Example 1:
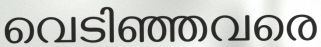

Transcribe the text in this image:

വെടിഞ്ഞവരെ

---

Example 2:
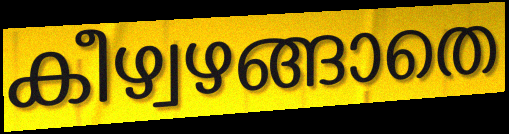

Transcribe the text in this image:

കീഴ്വഴങ്ങാതെ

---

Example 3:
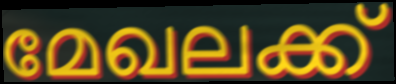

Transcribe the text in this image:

മേഖലക്ക്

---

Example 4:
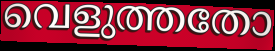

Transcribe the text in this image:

വെളുത്തതോ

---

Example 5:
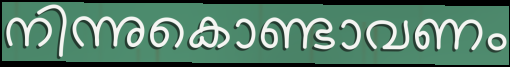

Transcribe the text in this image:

നിന്നുകൊണ്ടാവണം